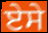
ਏਸੇ